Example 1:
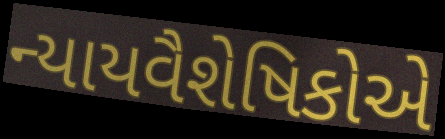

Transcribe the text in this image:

ન્યાયવૈશેષિકોએ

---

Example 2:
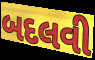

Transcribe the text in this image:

બદલવી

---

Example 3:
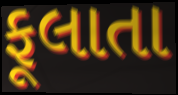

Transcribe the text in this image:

ફૂલાતા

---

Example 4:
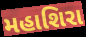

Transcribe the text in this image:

મહાશિરા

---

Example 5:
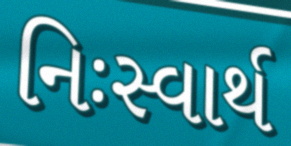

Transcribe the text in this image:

નિઃસ્વાર્થ